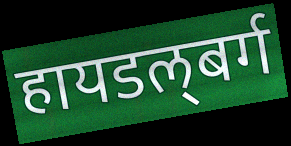
हायडल्बर्ग